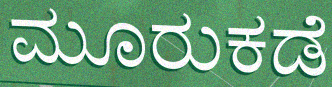
ಮೂರುಕಡೆ